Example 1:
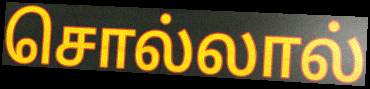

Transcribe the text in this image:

சொல்லால்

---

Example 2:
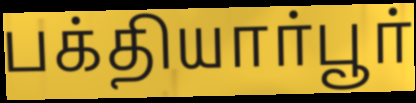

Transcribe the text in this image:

பக்தியார்பூர்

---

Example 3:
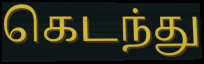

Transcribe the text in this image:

கெடந்து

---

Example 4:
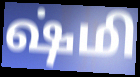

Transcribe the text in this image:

ஷ்மி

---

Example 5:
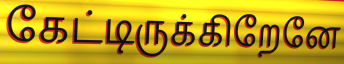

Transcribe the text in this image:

கேட்டிருக்கிறேனே